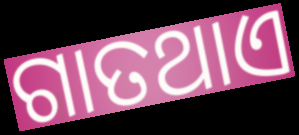
ଗାତଥାଏ